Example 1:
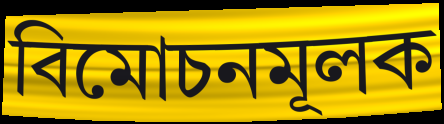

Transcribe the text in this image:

বিমোচনমূলক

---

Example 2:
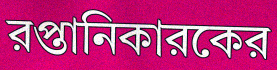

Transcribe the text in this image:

রপ্তানিকারকের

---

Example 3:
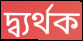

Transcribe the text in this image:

দ্ব্যর্থক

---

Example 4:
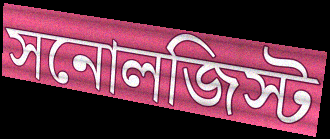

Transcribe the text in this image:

সনোলজিস্ট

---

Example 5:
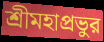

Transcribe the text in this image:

শ্রীমহাপ্রভুর